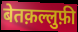
बेतक़ल्लुफ़ी